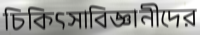
চিকিৎসাবিজ্ঞানীদের